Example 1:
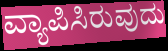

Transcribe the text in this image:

ವ್ಯಾಪಿಸಿರುವುದು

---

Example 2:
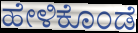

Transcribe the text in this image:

ಹೇಳಿಕೊಂಡೆ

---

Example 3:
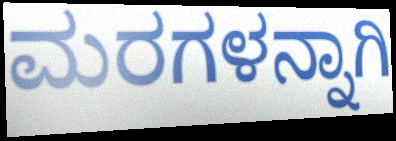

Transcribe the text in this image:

ಮರಗಳನ್ನಾಗಿ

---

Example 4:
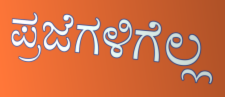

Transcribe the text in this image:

ಪ್ರಜೆಗಳಿಗೆಲ್ಲ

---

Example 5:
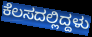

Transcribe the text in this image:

ಕೆಲಸದಲ್ಲಿದ್ದಳು